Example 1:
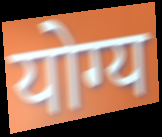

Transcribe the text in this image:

योग्य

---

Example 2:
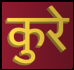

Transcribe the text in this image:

कुरे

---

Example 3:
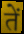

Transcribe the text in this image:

तें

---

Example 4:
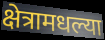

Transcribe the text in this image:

क्षेत्रामधल्या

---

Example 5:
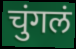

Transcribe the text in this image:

चुंगलं